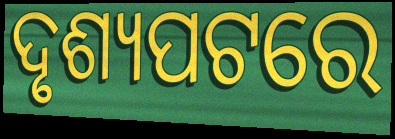
ଦୃଶ୍ୟପଟରେ